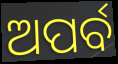
ଅପର୍ବ